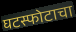
घटस्फोटाचा